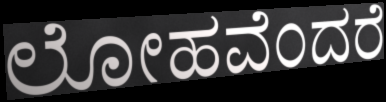
ಲೋಹವೆಂದರೆ